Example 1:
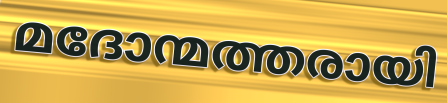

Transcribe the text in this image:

മദോന്മത്തരായി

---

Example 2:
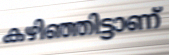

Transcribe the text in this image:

കഴിഞ്ഞിട്ടാണ്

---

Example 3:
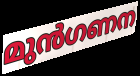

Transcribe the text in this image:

മുൻഗണന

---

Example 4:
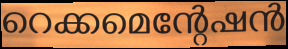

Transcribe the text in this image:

റെക്കമെന്റേഷൻ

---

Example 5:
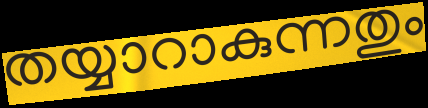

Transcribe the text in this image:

തയ്യാറാകുന്നതും